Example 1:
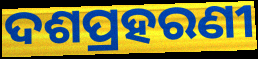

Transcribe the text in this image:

ଦଶପ୍ରହରଣୀ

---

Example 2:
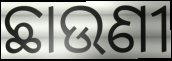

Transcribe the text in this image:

ଛାଉଣୀ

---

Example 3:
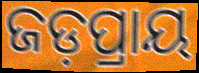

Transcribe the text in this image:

ଜଡ଼ପ୍ରାୟ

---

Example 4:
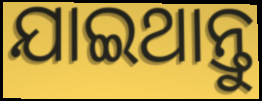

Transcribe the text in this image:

ଯାଇଥାନ୍ତୁ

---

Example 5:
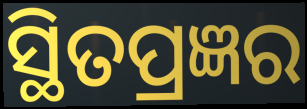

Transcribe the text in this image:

ସ୍ଥିତପ୍ରଜ୍ଞର